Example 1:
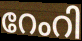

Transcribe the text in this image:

റേംറി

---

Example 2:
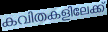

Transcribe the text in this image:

കവിതകളിലേക്ക്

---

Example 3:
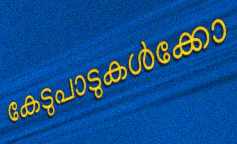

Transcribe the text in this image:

കേടുപാടുകൾക്കോ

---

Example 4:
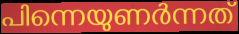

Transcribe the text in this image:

പിന്നെയുണർന്നത്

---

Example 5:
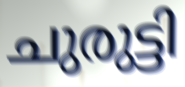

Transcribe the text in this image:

ചുരുട്ടി